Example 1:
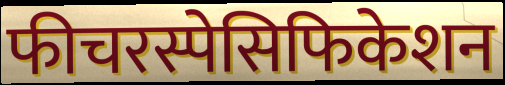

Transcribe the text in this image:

फीचरस्पेसिफिकेशन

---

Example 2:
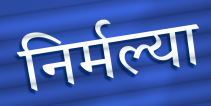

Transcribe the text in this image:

निर्मल्या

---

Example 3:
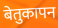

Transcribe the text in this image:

बेतुकापन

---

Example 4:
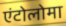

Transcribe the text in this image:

एंटोलोमा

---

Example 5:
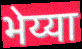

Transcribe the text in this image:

भेय्या